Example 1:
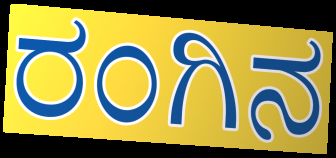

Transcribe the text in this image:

ರಂಗಿನ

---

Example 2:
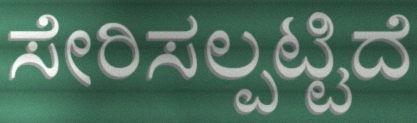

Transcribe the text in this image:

ಸೇರಿಸಲ್ಪಟ್ಟಿದೆ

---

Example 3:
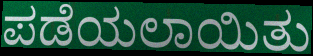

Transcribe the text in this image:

ಪಡೆಯಲಾಯಿತು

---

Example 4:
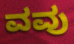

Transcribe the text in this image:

ವವು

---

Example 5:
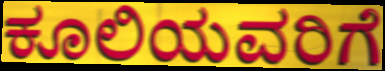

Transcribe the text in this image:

ಕೂಲಿಯವರಿಗೆ